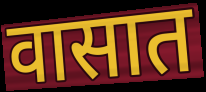
वासात